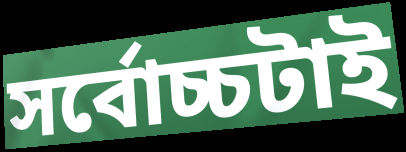
সর্বোচ্চটাই